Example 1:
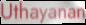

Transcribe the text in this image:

Uthayanan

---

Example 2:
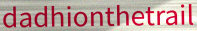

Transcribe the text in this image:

dadhionthetrail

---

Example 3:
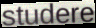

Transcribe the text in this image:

studere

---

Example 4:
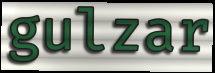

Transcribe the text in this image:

gulzar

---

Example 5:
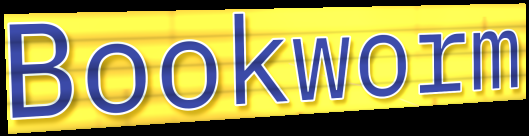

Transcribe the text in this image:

Bookworm